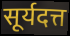
सूर्यदत्त